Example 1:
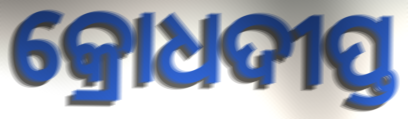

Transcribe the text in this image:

କ୍ରୋଧଦୀପ୍ତ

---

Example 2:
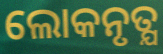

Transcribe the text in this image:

ଲୋକନୃତ୍ଯ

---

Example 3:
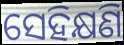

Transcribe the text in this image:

ସେହିକ୍ଷଣି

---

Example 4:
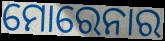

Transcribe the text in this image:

ମୋରେନାର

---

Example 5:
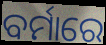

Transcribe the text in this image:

ବର୍ମାରେ